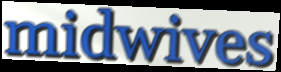
midwives